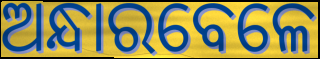
ଅନ୍ଧାରବେଳେ